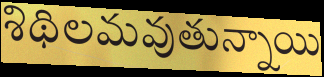
శిథిలమవుతున్నాయి